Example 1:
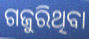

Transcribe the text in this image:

ଗଜୁରିଥିବା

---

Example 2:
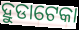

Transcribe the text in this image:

ହୁଡାଟେକା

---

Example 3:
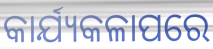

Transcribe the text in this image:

କାର୍ଯ୍ୟକଳାପରେ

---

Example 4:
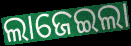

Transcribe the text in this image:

ଲାଜେଇଲା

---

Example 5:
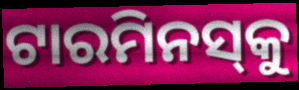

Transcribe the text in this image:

ଟାରମିନସ୍‌କୁ